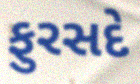
ફુરસદે